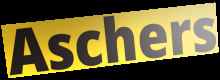
Aschers